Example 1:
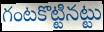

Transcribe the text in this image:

గంటకొట్టినట్టు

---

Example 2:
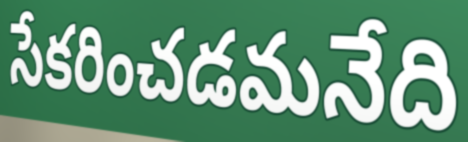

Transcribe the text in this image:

సేకరించడమనేది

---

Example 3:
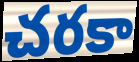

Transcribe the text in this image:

చరకా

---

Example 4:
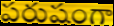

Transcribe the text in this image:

పరుషంగా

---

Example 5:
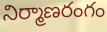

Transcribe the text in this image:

నిర్మాణరంగం